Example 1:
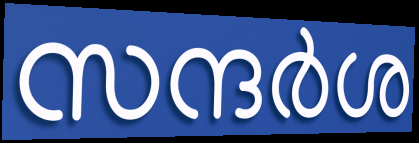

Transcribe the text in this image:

സന്ദർശ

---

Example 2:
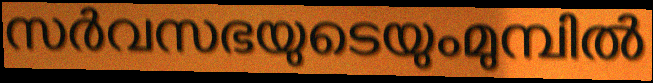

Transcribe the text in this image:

സർവസഭയുടെയുംമുമ്പിൽ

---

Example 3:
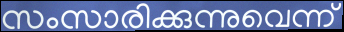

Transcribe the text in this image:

സംസാരിക്കുന്നുവെന്ന്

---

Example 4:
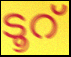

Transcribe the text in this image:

ടൂറ്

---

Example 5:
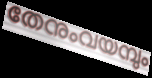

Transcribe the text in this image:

തേനുംവയമ്പും